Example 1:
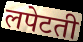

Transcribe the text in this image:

लपेटती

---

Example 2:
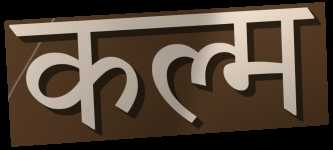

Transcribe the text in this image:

कल्म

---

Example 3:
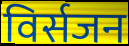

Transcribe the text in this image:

विर्सजन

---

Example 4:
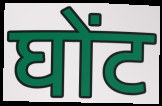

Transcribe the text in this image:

घोंट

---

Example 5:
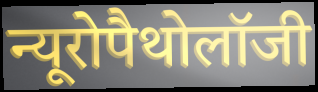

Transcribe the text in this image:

न्यूरोपैथोलॉजी